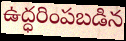
ఉద్ధరింపబడిన